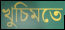
খুচিমতে